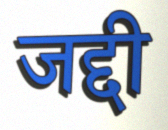
जद्दी